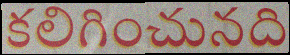
కలిగించునది